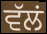
ਵੱਲਂ